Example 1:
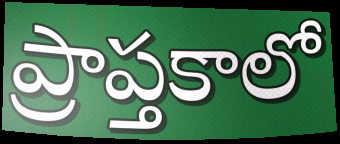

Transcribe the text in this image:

ప్రాప్తకాలో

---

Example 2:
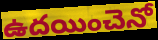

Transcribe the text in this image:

ఉదయించెనో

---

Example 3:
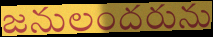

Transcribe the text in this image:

జనులందరును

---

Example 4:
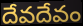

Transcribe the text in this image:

దేవదేవం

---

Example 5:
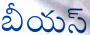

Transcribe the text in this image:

బీయస్